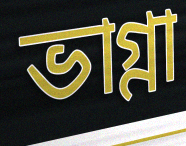
ভাগ্না